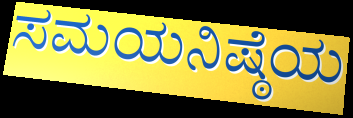
ಸಮಯನಿಷ್ಠೆಯ